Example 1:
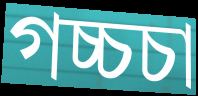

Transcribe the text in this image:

গচ্চচা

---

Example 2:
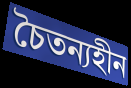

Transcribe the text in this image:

চৈতন্যহীন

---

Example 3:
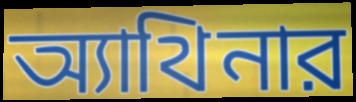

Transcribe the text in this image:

অ্যাথিনার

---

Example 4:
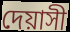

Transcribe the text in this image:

দেয়াসী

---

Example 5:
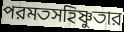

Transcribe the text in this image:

পরমতসহিষ্ণুতার